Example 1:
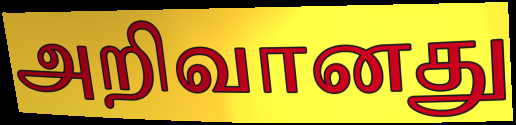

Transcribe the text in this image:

அறிவானது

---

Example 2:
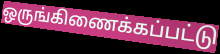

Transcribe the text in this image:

ஒருங்கிணைக்கப்பட்டு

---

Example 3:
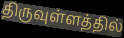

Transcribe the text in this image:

திருவுள்ளத்தில்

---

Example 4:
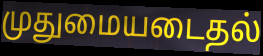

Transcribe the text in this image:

முதுமையடைதல்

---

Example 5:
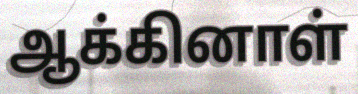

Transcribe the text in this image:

ஆக்கினாள்